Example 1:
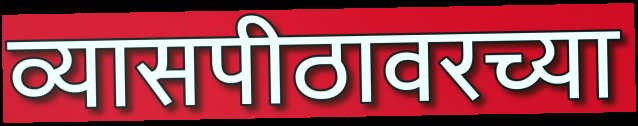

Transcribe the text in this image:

व्यासपीठावरच्या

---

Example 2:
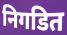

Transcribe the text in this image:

निगडित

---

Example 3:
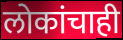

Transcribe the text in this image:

लोकांचाही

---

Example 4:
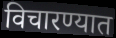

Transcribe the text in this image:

विचारण्यात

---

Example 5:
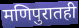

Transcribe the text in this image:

मणिपुरातही